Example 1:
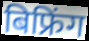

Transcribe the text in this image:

बिफ्रिंग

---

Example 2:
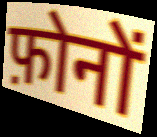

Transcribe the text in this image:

फ़ोनों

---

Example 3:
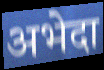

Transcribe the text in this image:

अभेदा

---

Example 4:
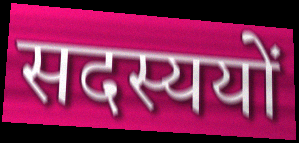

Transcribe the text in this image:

सदस्ययों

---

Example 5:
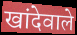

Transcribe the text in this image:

खांदेवाले